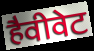
हैवीवेट